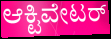
ಆಕ್ಟಿವೇಟರ್